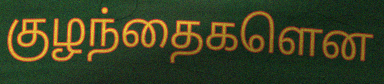
குழந்தைகளென